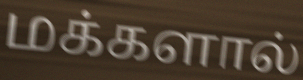
மக்களால்